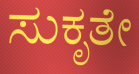
ಸುಕೃತೇ